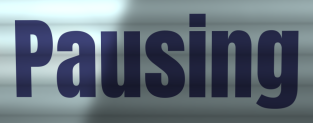
Pausing